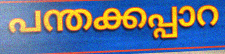
പന്തക്കപ്പാറ